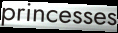
princesses